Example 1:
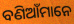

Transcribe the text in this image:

ବଣିଆଁମାନେ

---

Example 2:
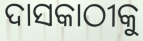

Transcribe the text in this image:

ଦାସକାଠୀକୁ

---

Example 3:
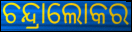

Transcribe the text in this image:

ଚନ୍ଦ୍ରାଲୋକର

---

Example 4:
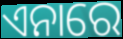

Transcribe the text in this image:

ଏନାରେ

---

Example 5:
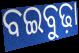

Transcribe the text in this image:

ବଇବୁଢ଼ା